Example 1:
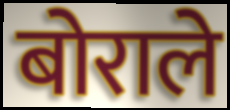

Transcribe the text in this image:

बोराले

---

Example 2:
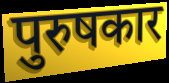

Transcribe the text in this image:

पुरुषकार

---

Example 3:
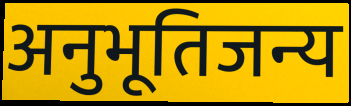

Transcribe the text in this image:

अनुभूतिजन्य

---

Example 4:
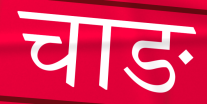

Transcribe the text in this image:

चाङ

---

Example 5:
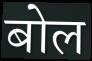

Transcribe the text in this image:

बोल